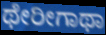
ಥೇರೀಗಾಥಾ